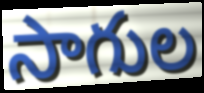
సాగుల